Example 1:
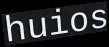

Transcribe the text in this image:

huios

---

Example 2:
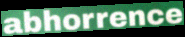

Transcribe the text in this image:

abhorrence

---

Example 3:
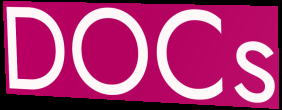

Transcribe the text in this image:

DOCs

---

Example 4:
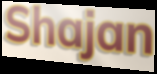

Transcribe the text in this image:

Shajan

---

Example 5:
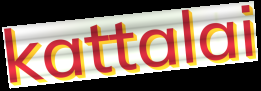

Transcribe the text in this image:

kattalai